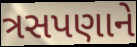
ત્રસપણાને